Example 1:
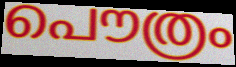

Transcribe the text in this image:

പൌത്രം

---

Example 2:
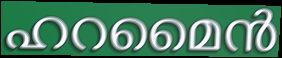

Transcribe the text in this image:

ഹറമൈൻ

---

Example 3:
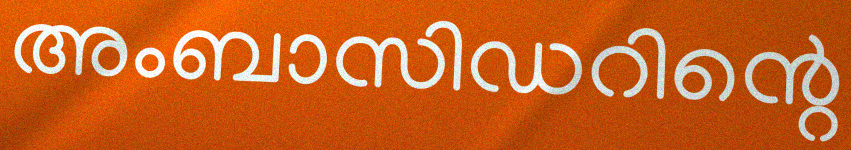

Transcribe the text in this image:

അംബാസിഡറിന്റെ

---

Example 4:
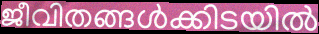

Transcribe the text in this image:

ജീവിതങ്ങൾക്കിടയിൽ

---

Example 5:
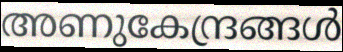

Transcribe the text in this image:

അണുകേന്ദ്രങ്ങൾ